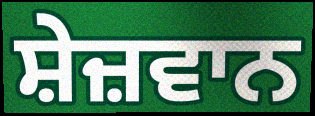
ਸ਼ੇਜ਼ਵਾਨ